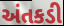
અંતકડી